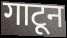
गाटून